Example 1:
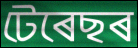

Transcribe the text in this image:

টেৰেছৰ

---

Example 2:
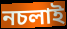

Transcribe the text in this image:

নচলাই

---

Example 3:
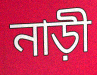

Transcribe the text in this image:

নাড়ী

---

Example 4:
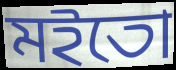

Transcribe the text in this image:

মইতো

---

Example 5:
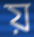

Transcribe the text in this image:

য়